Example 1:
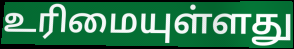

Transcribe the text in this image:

உரிமையுள்ளது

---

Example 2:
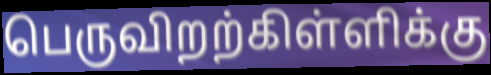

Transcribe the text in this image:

பெருவிறற்கிள்ளிக்கு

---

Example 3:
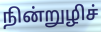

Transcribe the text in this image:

நின்றுழிச்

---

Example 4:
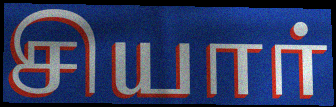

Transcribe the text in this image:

சியார்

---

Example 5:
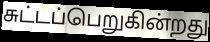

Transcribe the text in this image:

சுட்டப்பெறுகின்றது